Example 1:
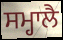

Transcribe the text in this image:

ਸਮ੍ਹ੍ਹਾਲੈ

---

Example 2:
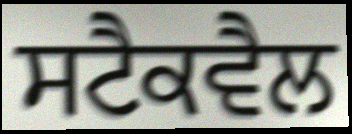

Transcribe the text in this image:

ਸਟੈਕਵੈਲ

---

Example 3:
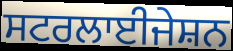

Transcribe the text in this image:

ਸਟਰਲਾਈਜੇਸ਼ਨ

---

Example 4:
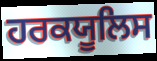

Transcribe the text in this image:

ਹਰਕਯੂਲਿਸ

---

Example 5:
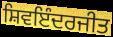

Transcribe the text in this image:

ਸ਼ਿਵਇੰਦਰਜੀਤ